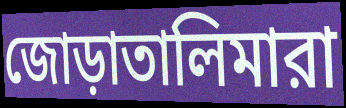
জোড়াতালিমারা